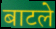
बाटले